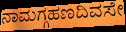
ನಾಮಗ್ಗಹಣದಿವಸೇ